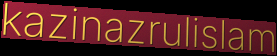
kazinazrulislam